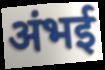
अंभई